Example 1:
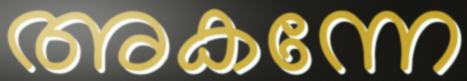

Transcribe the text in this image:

അകന്നേ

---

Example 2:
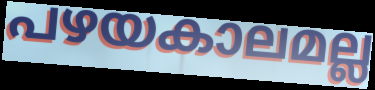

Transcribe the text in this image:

പഴയകാലമല്ല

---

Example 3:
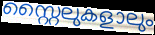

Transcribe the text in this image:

സ്റ്റൈലുകളാലും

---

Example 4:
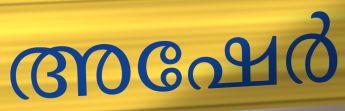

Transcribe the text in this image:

അഷേർ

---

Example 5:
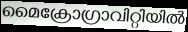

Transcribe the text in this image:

മൈക്രോഗ്രാവിറ്റിയിൽ